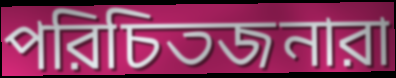
পরিচিতজনারা